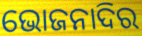
ଭୋଜନାଦିର